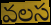
వలస